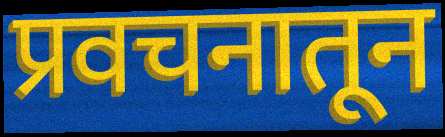
प्रवचनातून